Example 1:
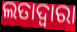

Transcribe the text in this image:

ଲତାଦ୍ୱାରା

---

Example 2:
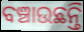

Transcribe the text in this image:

ବଞ୍ଚାଉଛନ୍ତି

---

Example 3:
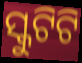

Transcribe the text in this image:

ସ୍କୁଟିଟି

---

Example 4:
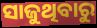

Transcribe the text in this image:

ସାଜୁଥିବାରୁ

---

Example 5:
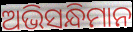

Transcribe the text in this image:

ଅଭିସନ୍ଧିମାନ